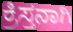
ಕ್ರಿಸ್ತನಾಗಿ